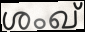
ശംഖ്